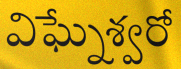
విఘ్నేశ్వరో